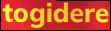
togidere